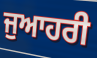
ਜੁਆਹਰੀ